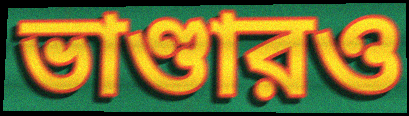
ভাণ্ডারও